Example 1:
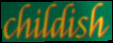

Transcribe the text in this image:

childish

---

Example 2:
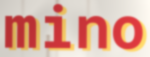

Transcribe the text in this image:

mino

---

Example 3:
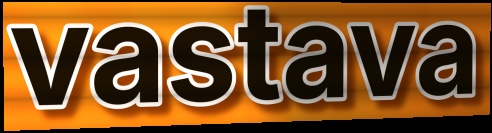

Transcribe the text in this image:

vastava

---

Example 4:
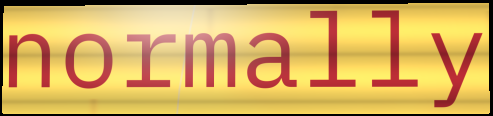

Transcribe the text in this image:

normally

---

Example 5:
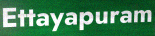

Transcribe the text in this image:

Ettayapuram